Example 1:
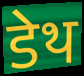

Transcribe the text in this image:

डेथ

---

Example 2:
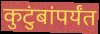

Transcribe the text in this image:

कुटुंबांपर्यंत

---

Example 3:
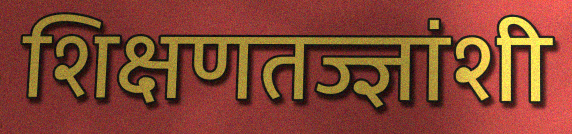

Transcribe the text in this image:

शिक्षणतज्ज्ञांशी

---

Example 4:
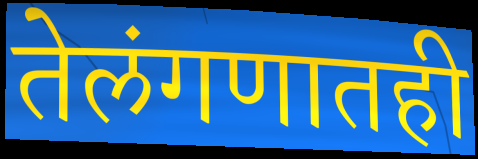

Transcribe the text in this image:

तेलंगणातही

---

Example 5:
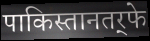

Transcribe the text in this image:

पाकिस्तानतर्फे